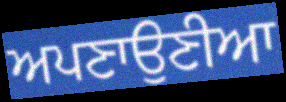
ਅਪਣਾਉਣੀਆ